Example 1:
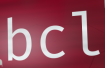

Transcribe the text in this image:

bcl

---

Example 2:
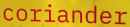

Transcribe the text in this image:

coriander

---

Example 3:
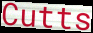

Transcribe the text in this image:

Cutts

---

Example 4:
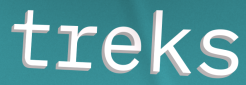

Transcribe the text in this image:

treks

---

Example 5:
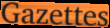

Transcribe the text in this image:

Gazettes